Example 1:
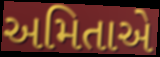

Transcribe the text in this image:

અમિતાએ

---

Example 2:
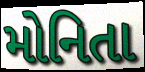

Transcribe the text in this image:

મોનિતા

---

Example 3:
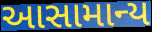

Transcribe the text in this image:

આસામાન્ય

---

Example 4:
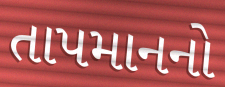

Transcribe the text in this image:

તાપમાનનો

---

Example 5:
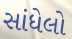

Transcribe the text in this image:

સાંધેલો